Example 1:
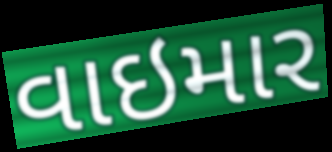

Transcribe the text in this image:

વાઇમાર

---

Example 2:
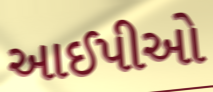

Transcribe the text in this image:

આઈપીઓ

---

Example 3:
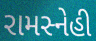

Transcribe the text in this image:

રામસ્નેહી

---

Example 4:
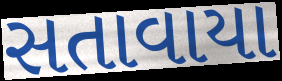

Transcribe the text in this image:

સતાવાયા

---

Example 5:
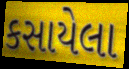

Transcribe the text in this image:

કસાયેલા